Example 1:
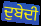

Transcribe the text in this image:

ਦੁਬੇਦੀ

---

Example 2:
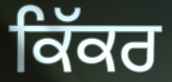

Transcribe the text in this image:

ਕਿੱਕਰ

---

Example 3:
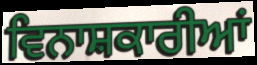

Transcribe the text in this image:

ਵਿਨਾਸ਼ਕਾਰੀਆਂ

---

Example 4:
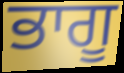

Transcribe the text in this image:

ਭਾਗੂ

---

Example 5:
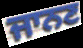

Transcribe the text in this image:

ਜਾਨਣ